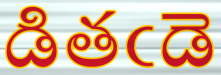
డితఁడె